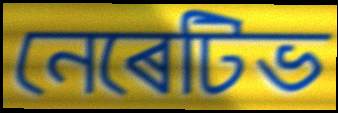
নেৰেটিভ